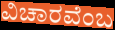
ವಿಚಾರವೆಂಬ